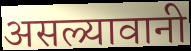
असल्यावानी